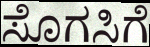
ಸೊಗಸಿಗೆ